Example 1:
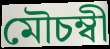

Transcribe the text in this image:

মৌচম্বী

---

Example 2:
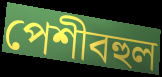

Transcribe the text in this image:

পেশীবহুল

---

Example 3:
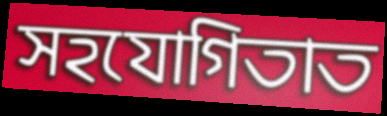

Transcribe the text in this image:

সহযোগিতাত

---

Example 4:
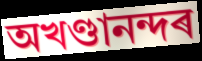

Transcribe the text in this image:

অখণ্ডানন্দৰ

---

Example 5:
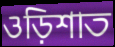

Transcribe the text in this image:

ওড়িশাত